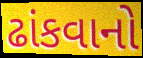
ઢાંકવાનો